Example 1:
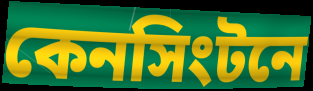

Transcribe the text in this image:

কেনসিংটনে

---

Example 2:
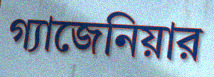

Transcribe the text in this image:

গ্যাজেনিয়ার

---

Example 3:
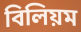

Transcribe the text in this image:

বিলিয়ম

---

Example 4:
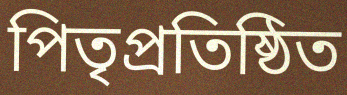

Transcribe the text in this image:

পিতৃপ্রতিষ্ঠিত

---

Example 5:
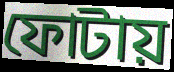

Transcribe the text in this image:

ফোটায়